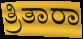
ತ್ರಿತಾರಾ